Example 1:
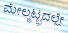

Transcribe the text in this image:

ಮೇಲ್ಮಟ್ಟದಲ್ಲೇ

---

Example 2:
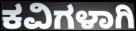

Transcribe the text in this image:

ಕವಿಗಳಾಗಿ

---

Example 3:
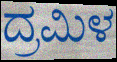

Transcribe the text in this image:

ದ್ರಮಿಳ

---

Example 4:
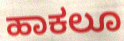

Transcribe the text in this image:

ಹಾಕಲೂ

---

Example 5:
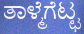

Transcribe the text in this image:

ತಾಳ್ಮೆಗೆಟ್ಟ